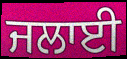
ਜਲਾਈ